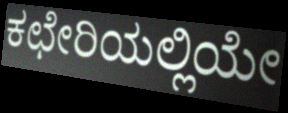
ಕಛೇರಿಯಲ್ಲಿಯೇ